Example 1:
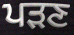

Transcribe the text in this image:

ਪੜਣ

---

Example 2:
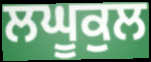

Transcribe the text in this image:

ਲਘੂਕੁਲ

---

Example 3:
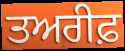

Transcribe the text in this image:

ਤਅਰੀਫ਼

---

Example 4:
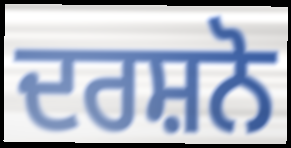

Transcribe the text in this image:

ਦਰਸ਼ਨੋ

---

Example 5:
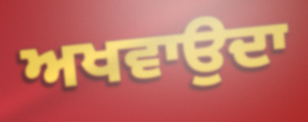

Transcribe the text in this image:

ਅਖਵਾਉਦਾ